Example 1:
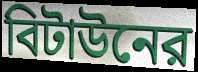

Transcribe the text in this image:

বিটাউনের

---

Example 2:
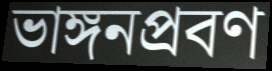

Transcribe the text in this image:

ভাঙ্গনপ্রবণ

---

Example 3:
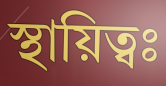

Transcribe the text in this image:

স্থায়িত্বঃ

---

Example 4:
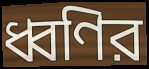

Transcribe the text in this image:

ধ্বণির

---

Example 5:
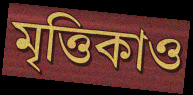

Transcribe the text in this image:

মৃত্তিকাও